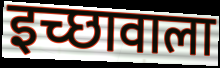
इच्छावाला